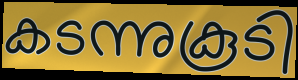
കടന്നുകൂടി